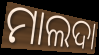
ମାଲଦା